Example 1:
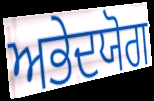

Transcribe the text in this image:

ਅਭੇਦਯੋਗ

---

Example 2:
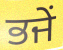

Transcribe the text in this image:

ਭਜੇਂ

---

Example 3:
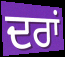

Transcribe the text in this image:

ਦਰਾਂ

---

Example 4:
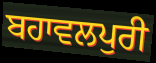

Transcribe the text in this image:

ਬਹਾਵਲਪੁਰੀ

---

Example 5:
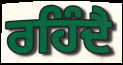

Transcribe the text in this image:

ਰਹਿੰਦੈ